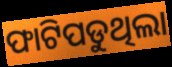
ଫାଟିପଡୁଥିଲା